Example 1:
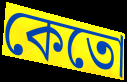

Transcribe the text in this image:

কেতো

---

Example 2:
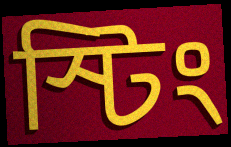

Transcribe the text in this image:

স্টিং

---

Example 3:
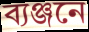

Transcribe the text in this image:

ব্যঞ্জনে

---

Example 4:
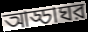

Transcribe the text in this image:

আড্ডাঘর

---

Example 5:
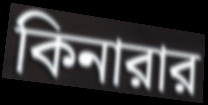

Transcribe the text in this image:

কিনারার